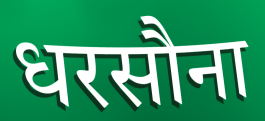
धरसौना